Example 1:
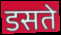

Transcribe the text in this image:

डसते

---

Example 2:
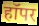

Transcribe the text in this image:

हॉपर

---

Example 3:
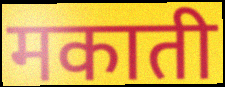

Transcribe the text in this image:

मकाती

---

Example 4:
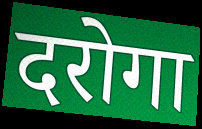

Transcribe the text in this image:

दरोगा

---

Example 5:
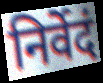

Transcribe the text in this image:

निर्वेदं